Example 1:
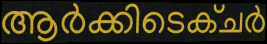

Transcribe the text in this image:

ആർക്കിടെക്ചർ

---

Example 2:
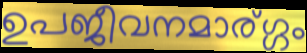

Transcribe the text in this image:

ഉപജീവനമാര്ഗ്ഗം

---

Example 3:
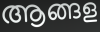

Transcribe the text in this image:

ആങ്ങള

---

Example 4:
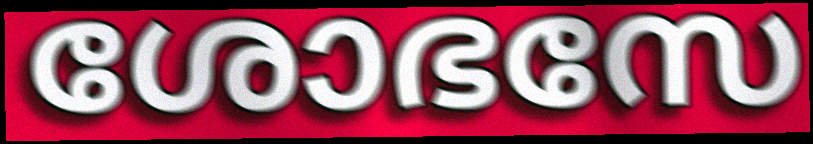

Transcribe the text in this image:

ശോഭസേ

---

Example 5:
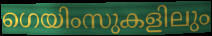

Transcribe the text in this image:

ഗെയിംസുകളിലും